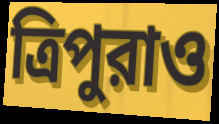
ত্রিপুরাও